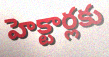
హెక్టార్లకు